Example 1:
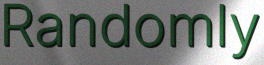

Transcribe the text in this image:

Randomly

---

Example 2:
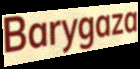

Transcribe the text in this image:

Barygaza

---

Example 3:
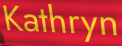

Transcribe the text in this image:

Kathryn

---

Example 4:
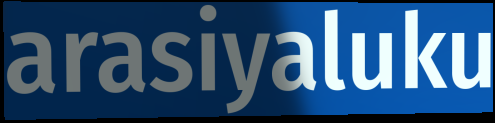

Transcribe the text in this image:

arasiyaluku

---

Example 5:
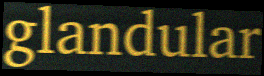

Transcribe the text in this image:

glandular